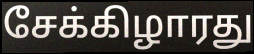
சேக்கிழாரது